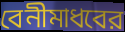
বেনীমাধবের